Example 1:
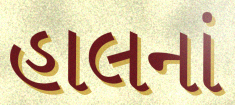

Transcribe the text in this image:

હાલનાં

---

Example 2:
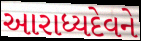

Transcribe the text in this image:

આરાધ્યદેવને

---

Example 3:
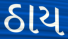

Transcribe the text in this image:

ઠાય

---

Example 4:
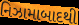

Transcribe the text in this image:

નિઝામાબાદથી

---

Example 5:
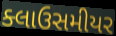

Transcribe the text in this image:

ક્લાઉસમીયર